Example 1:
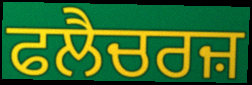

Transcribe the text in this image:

ਫਲੈਚਰਜ਼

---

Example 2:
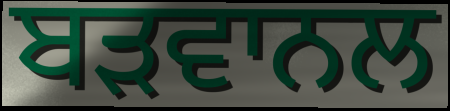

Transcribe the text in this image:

ਬੜਵਾਨਲ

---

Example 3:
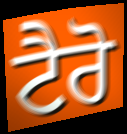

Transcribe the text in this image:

ਟੈਰੋ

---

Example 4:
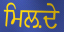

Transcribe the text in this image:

ਮਿਲ਼ਦੇ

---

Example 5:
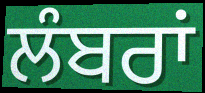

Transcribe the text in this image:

ਲੰਬਰਾਂ